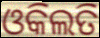
ଓକିଲତି